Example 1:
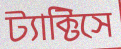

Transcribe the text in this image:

ট্যাক্টিসে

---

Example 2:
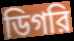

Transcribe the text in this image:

ডিগরি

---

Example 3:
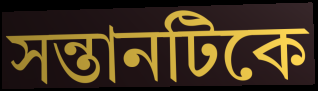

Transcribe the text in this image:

সন্তানটিকে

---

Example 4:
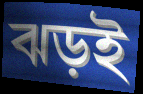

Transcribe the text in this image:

ঝড়ই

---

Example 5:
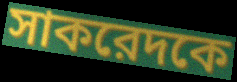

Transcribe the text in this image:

সাকরেদকে